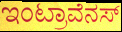
ಇಂಟ್ರಾವೆನಸ್